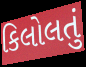
કિલોલતું